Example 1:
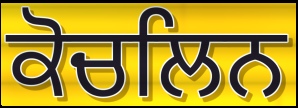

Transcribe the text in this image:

ਕੋਚਲਿਨ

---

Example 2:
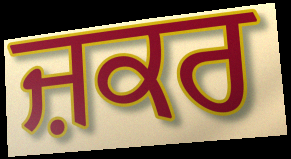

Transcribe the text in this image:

ਜ਼ਕਰ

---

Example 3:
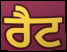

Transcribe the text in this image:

ਰੈਟ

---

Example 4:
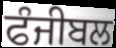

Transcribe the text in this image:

ਫੰਜੀਬਲ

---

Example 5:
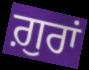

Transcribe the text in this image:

ਗ਼ੁਰਾਂ